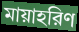
মায়াহরিণ